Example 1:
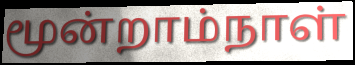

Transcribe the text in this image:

மூன்றாம்நாள்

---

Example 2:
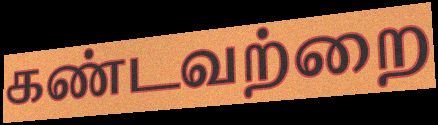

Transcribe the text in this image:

கண்டவற்றை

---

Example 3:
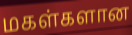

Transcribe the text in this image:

மகள்களான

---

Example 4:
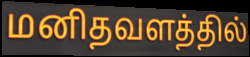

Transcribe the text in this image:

மனிதவளத்தில்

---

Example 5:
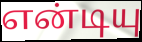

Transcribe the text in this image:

என்டியு